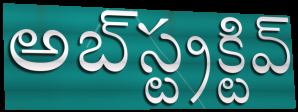
అబ్‌స్ట్రక్టివ్